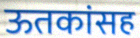
ऊतकांसह